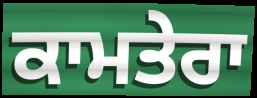
ਕਾਮਤੇਰਾ